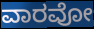
ವಾರವೋ